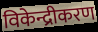
विकेन्द्रीकरण